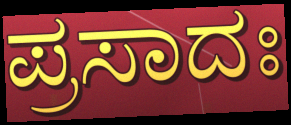
ಪ್ರಸಾದಃ